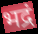
भद्रं